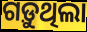
ଗଡ଼ୁଥିଲା